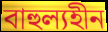
বাহুল্যহীন